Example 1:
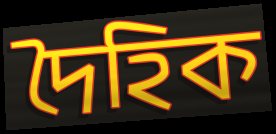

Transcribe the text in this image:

দৈহিক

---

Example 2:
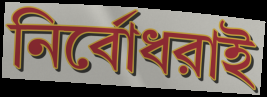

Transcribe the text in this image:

নির্বোধরাই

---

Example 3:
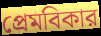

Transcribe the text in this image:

প্রেমবিকার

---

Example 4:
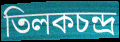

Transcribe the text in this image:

তিলকচন্দ্র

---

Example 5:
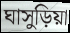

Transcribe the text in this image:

ঘাসুড়িয়া